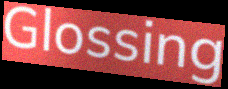
Glossing